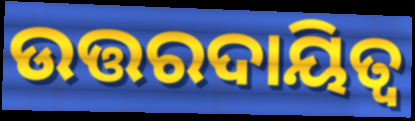
ଉତ୍ତରଦାୟିତ୍ଵ